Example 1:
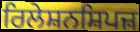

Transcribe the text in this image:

ਰਿਲੇਸ਼ਨਸ਼ਿਪਜ਼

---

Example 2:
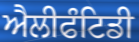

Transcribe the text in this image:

ਐਲੀਫੰਟਿਡੀ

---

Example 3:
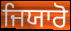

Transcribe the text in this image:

ਜਿਯਾਰੋ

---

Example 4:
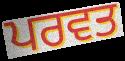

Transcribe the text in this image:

ਪਰਵਤ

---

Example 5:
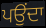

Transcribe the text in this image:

ਪਉਂਦਾ